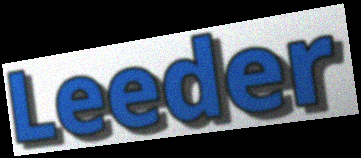
Leeder